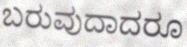
ಬರುವುದಾದರೂ